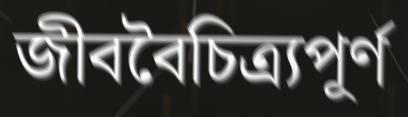
জীববৈচিত্র্যপূর্ণ